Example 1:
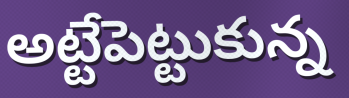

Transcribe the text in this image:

అట్టేపెట్టుకున్న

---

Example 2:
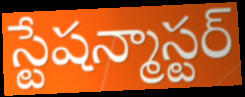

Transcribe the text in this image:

స్టేషన్మాస్టర్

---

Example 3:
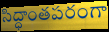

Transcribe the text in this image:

సిద్ధాంతపరంగా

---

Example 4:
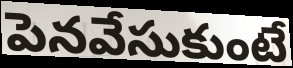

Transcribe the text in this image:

పెనవేసుకుంటే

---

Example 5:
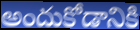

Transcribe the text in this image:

అందుకోడానికి